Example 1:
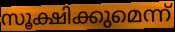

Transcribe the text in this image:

സൂക്ഷിക്കുമെന്ന്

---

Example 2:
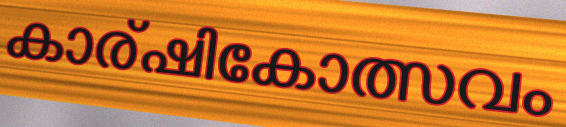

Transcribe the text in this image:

കാര്ഷികോത്സവം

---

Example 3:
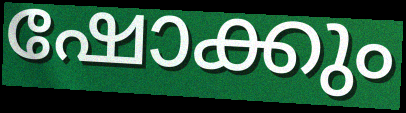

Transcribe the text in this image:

ഷോക്കും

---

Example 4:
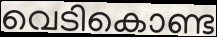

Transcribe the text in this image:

വെടികൊണ്ട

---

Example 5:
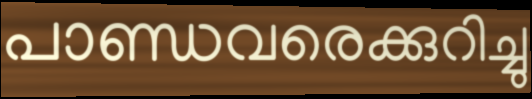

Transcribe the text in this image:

പാണ്ഡവരെക്കുറിച്ചു